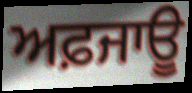
ਅਫ਼ਜਾਊ